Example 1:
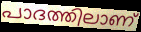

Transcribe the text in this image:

പാദത്തിലാണ്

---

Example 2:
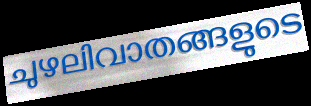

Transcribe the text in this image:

ചുഴലിവാതങ്ങളുടെ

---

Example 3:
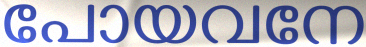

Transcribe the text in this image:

പോയവനേ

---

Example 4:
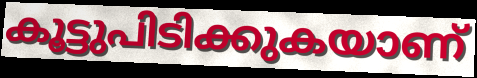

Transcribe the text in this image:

കൂട്ടുപിടിക്കുകയാണ്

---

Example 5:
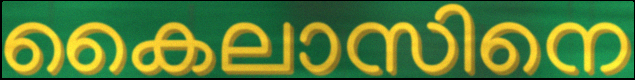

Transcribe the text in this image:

കൈലാസിനെ